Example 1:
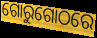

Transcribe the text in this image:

ଗୋରୁଗୋଠରେ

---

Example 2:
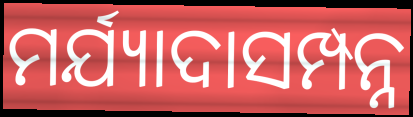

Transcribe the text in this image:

ମର୍ଯ୍ୟାଦାସମ୍ପନ୍ନ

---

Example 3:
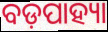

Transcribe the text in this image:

ବଡ଼ପାହ୍ୟା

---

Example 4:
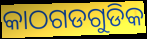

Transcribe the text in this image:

କାଠଗଡଗୁଡିକ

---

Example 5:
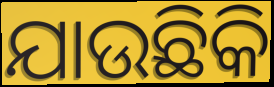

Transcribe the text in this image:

ଯାଉଛିକି